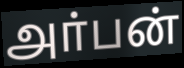
அர்பன்